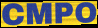
CMPO